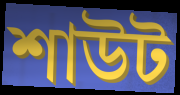
শাউট